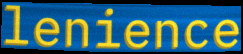
lenience